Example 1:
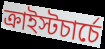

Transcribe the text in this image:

ক্রাইস্টচার্চে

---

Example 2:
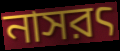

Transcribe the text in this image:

নাসরৎ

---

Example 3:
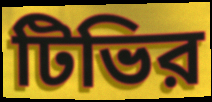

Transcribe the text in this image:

টিভির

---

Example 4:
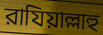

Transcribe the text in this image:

রাযিয়াল্লাহু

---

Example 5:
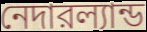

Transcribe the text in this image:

নেদারল্যান্ড